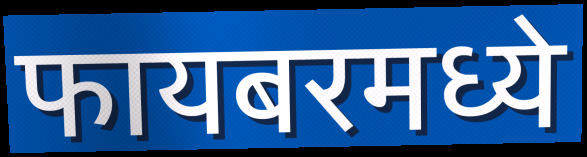
फायबरमध्ये